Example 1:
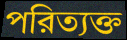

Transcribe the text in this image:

পরিত্যক্ত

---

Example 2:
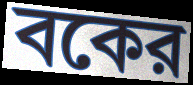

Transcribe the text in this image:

বকের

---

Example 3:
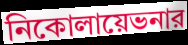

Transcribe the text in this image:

নিকোলায়েভনার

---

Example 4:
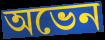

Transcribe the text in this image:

অভেন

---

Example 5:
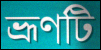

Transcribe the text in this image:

ভ্রূণটি